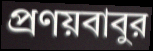
প্রণয়বাবুর